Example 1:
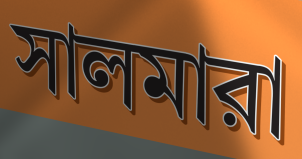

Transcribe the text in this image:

সালমারা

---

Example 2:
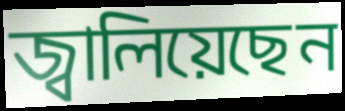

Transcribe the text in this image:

জ্বালিয়েছেন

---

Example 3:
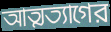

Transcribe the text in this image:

আত্মত্যাগের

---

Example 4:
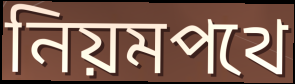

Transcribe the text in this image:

নিয়মপথে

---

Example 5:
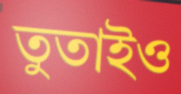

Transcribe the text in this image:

তুতাইও